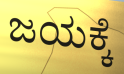
ಜಯಕ್ಕೆ